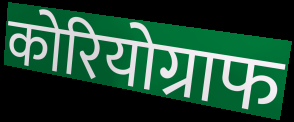
कोरियोग्राफ